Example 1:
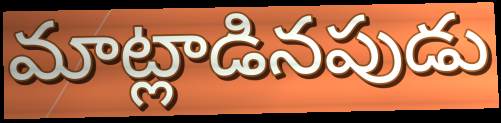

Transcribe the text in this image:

మాట్లాడినపుడు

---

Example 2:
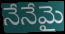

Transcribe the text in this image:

నేనేమై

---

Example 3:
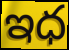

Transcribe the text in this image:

ఇధ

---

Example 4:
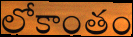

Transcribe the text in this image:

లోకాంతం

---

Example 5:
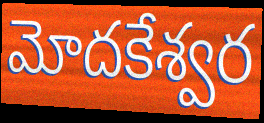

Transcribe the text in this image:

మోదకేశ్వర